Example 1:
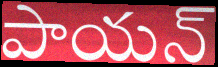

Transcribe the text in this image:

పాయన్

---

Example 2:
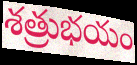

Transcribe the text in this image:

శత్రుభయం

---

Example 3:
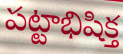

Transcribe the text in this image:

పట్టాభిషిక్త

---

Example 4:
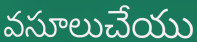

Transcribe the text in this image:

వసూలుచేయు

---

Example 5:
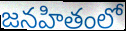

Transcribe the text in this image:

జనహితంలో